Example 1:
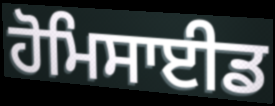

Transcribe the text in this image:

ਹੋਮਿਸਾਈਡ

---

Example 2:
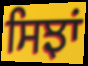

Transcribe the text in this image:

ਸਿਝਾਂ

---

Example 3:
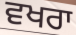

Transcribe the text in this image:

ਵਖਰਾ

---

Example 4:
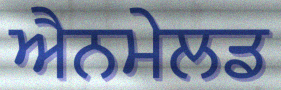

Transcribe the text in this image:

ਐਨਮੇਲਡ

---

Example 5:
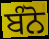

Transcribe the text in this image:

ਬੰਨੋ